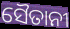
ସୈତାନୀ